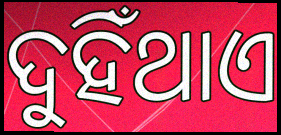
ଦୁହିଁଥାଏ